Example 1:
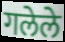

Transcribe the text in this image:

गलेले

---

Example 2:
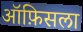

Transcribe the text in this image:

ऑफ़िसला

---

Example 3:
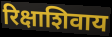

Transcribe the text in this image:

रिक्षाशिवाय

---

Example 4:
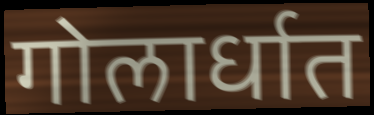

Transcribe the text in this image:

गोलार्धात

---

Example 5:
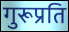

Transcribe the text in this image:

गुरूप्रति